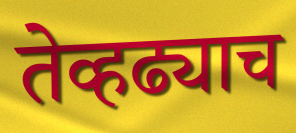
तेव्हढ्याच